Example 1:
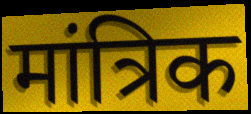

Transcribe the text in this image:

मांत्रिक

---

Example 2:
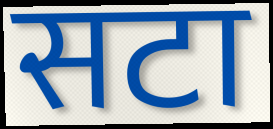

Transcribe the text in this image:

सटा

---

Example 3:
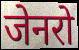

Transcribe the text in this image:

जेनरो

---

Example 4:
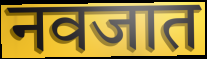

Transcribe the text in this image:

नवजात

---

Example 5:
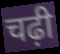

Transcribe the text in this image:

चढ़ी